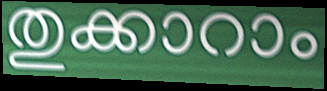
തുക്കാറാം